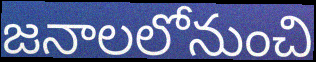
జనాలలోనుంచి